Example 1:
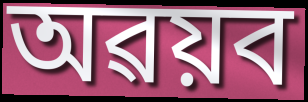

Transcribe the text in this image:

অৱয়ব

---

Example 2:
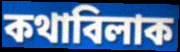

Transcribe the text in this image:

কথাবিলাক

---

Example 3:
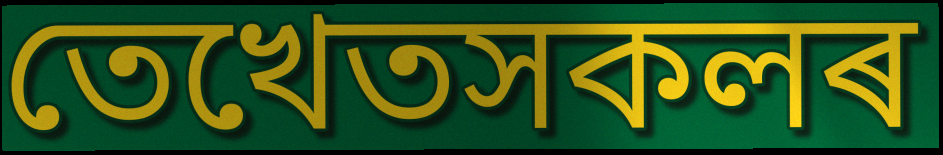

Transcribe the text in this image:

তেখেতসকলৰ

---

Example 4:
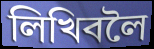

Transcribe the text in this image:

লিখিবলৈ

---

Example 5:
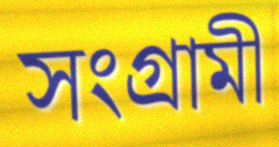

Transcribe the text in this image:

সংগ্ৰামী